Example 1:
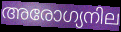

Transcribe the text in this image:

അരോഗ്യനില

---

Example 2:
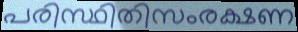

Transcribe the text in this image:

പരിസ്ഥിതിസംരക്ഷണ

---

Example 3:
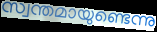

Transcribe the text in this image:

സ്വന്തമായുണ്ടെന്നു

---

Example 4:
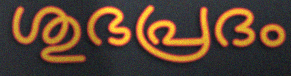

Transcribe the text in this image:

ശുഭപ്രദം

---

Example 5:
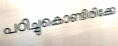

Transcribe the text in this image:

പഠിച്ചുകൊണ്ടിരിക്കേ